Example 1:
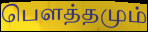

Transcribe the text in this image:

பௌத்தமும்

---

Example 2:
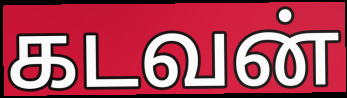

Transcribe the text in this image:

கடவன்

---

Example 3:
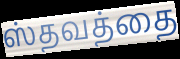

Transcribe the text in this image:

ஸ்தவத்தை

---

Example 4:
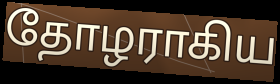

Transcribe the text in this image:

தோழராகிய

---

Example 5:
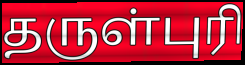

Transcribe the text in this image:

தருள்புரி